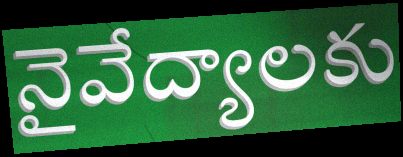
నైవేద్యాలకు